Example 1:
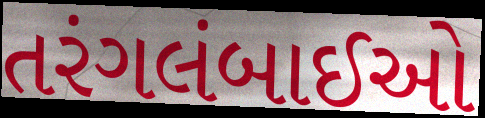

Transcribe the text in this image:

તરંગલંબાઈઓ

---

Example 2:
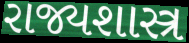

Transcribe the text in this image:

રાજ્યશાસ્ત્ર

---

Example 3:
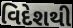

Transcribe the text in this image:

વિદેશથી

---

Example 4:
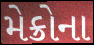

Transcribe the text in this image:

મેક્રોના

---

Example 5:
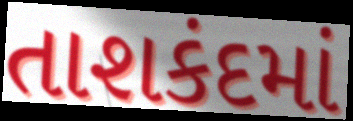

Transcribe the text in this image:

તાશકંદમાં